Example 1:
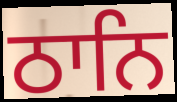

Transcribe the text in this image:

ਠਾਨਿ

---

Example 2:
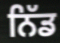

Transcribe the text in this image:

ਨਿੱਡ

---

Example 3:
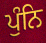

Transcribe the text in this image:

ਪੁੰਨਿ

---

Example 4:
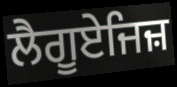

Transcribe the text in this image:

ਲੈਗੂਏਜਿਜ਼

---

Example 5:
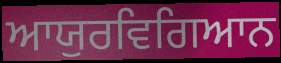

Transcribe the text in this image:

ਆਯੁਰਵਿਗਿਆਨ